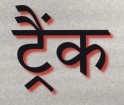
ट्रैंक